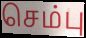
செம்பு